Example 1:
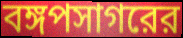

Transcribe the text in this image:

বঙ্গপসাগরের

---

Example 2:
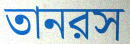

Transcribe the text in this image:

তানরস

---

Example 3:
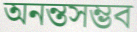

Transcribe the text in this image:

অনন্তসম্ভব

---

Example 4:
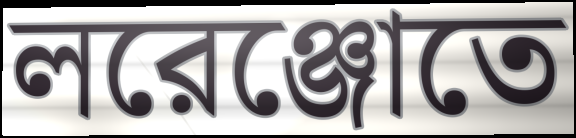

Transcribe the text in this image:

লরেঞ্জোতে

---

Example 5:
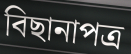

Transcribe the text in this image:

বিছানাপত্র